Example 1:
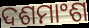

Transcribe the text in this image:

ଦଶମାଂଶ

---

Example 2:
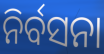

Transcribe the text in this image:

ନିର୍ବସନା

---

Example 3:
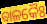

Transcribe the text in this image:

ବାଳକୈଃ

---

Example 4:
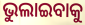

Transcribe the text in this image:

ଭୁଲାଇବାକୁ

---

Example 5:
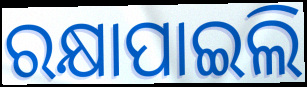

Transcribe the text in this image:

ରକ୍ଷାପାଇଲି